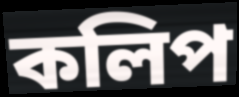
কলিপ